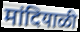
मांदियाळी